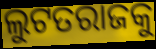
ଲୁଟତରାଜକୁ